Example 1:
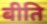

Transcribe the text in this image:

बीति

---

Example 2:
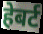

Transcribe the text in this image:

हेबर्ट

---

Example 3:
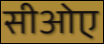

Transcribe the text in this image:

सीओए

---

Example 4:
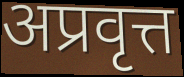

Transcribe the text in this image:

अप्रवृत्त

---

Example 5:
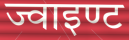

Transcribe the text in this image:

ज्वाइण्ट